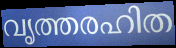
വൃത്തരഹിത